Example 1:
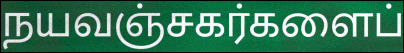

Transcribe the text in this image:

நயவஞ்சகர்களைப்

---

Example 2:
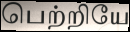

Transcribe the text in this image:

பெற்றியே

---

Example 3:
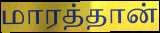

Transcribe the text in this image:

மாரத்தான்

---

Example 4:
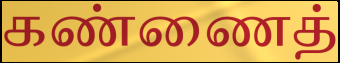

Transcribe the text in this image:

கண்ணைத்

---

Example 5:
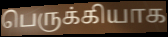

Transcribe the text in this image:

பெருக்கியாக